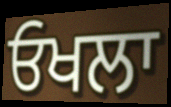
ਓਖਲਾ